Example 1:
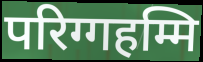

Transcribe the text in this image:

परिग्गहम्मि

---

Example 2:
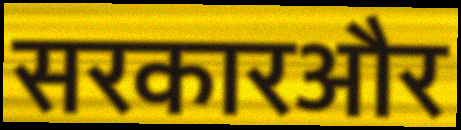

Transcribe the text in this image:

सरकारऔर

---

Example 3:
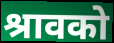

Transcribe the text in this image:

श्रावको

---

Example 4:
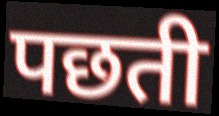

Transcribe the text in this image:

पछती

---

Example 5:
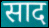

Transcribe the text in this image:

साद